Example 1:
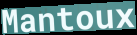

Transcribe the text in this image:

Mantoux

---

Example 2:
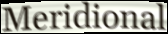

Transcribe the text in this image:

Meridional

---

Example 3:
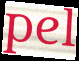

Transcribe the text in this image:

pel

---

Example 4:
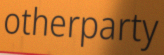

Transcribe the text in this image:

otherparty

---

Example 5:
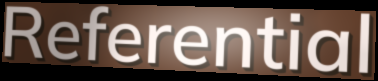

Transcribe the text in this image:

Referential